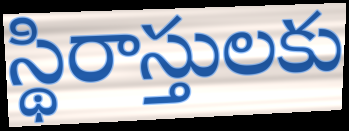
స్థిరాస్తులకు